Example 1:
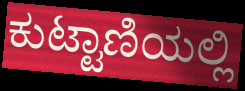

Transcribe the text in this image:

ಕುಟ್ಟಾಣಿಯಲ್ಲಿ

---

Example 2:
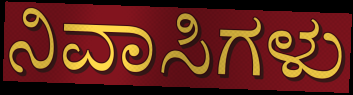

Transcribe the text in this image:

ನಿವಾಸಿಗಳು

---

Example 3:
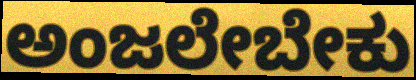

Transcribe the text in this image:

ಅಂಜಲೇಬೇಕು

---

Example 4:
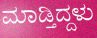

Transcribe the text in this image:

ಮಾಡ್ತಿದ್ದಳು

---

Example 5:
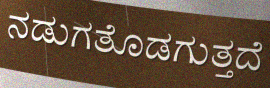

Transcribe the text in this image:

ನಡುಗತೊಡಗುತ್ತದೆ